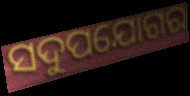
ସଦୁପଯୋଗର